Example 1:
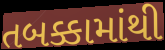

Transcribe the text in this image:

તબક્કામાંથી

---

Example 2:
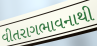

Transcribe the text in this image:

વીતરાગભાવનાથી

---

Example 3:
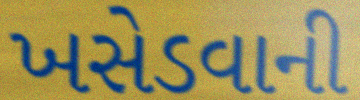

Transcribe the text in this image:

ખસેડવાની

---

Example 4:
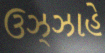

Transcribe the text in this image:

ઉઝ્ઝાહે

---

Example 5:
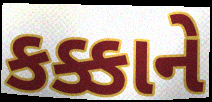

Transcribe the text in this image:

કક્કાને